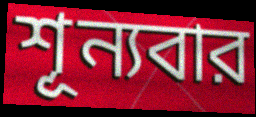
শূন্যবার